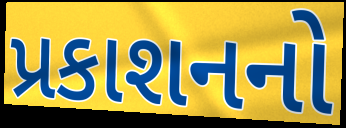
પ્રકાશનનો